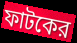
ফাটকের